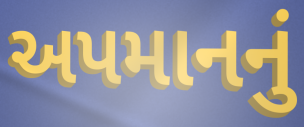
અપમાનનું